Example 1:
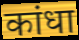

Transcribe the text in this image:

कांधा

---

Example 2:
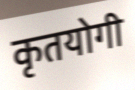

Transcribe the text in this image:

कृतयोगी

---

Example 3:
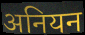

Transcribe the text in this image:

अनियन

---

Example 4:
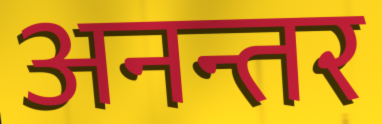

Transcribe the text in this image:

अनन्तर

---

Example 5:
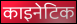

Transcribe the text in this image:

काइनेटिक